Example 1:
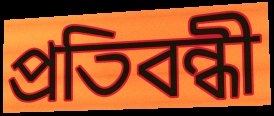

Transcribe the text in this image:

প্রতিবন্ধী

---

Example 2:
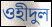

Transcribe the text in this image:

ওহীদুল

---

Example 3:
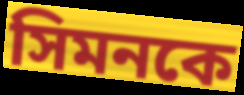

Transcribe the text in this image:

সিমনকে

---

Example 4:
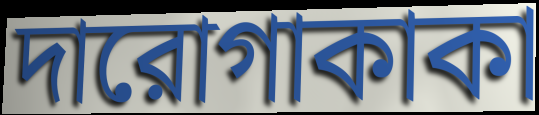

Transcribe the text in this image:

দারোগাকাকা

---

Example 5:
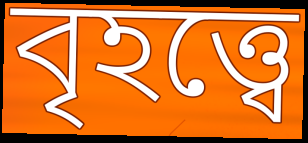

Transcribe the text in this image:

বৃহত্ত্বে